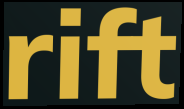
rift